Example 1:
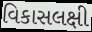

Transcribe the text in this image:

વિકાસલક્ષી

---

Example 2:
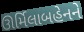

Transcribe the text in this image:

ઊર્મિલાબહેનને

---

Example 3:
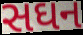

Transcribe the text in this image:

સઘન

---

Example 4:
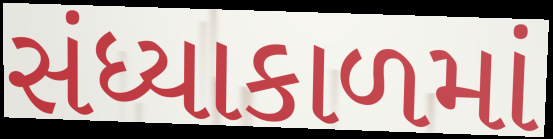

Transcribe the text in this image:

સંધ્યાકાળમાં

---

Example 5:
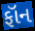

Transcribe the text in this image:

ફૉન